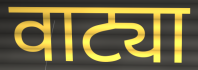
वाट्या